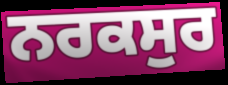
ਨਰਕਸੁਰ